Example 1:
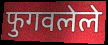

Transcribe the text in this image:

फुगवलेले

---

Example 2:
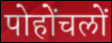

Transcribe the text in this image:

पोहोंचलों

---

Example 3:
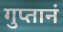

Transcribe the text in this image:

गुप्तानं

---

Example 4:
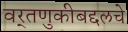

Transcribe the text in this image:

वर्तणुकीबद्दलचे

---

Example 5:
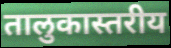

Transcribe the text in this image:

तालुकास्तरीय